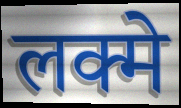
लक्मे